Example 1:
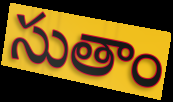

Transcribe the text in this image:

సుతాం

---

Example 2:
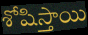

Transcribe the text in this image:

శోషిస్తాయి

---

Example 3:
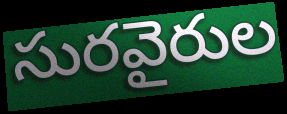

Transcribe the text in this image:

సురవైరుల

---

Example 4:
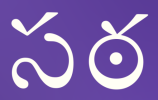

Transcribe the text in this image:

సఠ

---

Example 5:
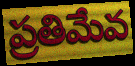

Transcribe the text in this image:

ప్రతిమేవ